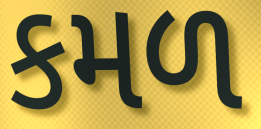
કમળ